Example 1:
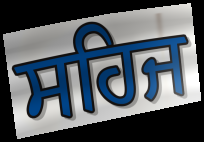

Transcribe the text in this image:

ਸਹਿਜ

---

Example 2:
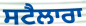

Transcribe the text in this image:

ਸਟੈਲਾਰਾ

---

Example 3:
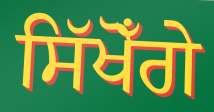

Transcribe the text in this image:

ਸਿੱਖੋਁਗੇ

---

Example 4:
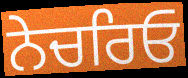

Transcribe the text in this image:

ਨੇਚਰਿਓ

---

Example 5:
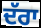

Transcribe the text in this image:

ਦੱਰਾ